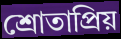
শ্রোতাপ্রিয়